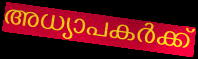
അധ്യാപകർക്ക്